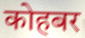
कोहबर